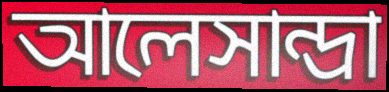
আলেসান্দ্রা